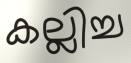
കല്ലിച്ച